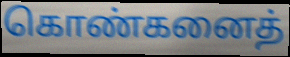
கொண்கனைத்